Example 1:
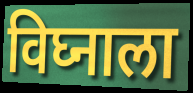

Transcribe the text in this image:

विघ्नाला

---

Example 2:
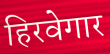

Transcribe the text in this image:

हिरवेगार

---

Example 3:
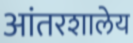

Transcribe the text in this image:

आंतरशालेय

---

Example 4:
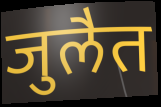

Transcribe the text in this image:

जुलैत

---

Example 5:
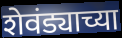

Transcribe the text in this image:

शेवंड्याच्या